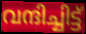
വന്ദിച്ചിട്ട്